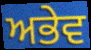
ਅਭੇਵ